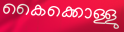
കൈക്കൊള്ളു